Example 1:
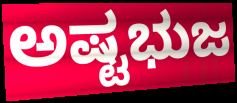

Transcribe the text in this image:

ಅಷ್ಟಭುಜ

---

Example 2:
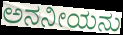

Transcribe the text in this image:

ಅನನೀಯನು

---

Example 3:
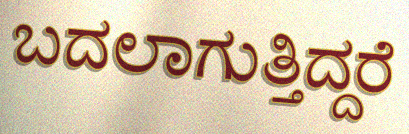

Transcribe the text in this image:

ಬದಲಾಗುತ್ತಿದ್ದರೆ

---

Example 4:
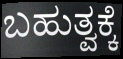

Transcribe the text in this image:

ಬಹುತ್ವಕ್ಕೆ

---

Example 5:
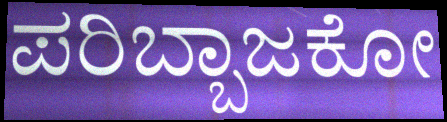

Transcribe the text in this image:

ಪರಿಬ್ಬಾಜಕೋ